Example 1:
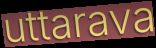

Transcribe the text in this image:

uttarava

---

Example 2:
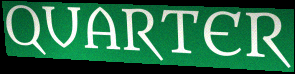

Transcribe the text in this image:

QUARTER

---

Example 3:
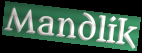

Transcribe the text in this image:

Mandlik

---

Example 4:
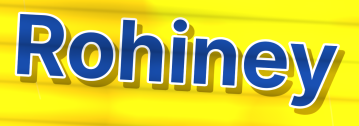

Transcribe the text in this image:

Rohiney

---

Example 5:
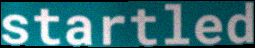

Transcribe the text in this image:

startled